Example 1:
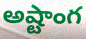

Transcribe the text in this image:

అష్టాంగ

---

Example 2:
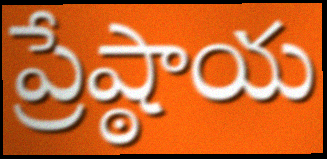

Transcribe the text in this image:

ప్రేష్ఠాయ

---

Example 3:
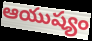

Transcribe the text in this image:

ఆయుష్యం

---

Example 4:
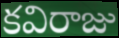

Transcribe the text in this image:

కవిరాజు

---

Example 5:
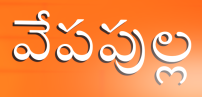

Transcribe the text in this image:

వేపపుల్ల